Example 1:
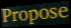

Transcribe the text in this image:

Propose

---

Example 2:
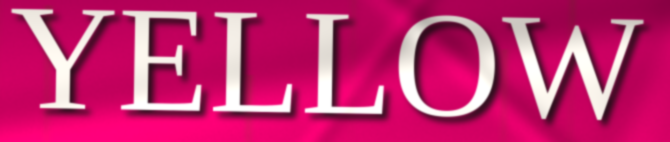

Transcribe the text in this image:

YELLOW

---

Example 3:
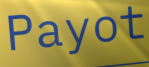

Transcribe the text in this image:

Payot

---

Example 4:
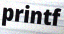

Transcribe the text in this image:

printf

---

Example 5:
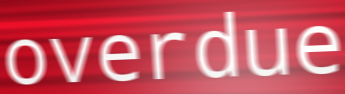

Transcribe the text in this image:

overdue